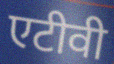
एटीवी